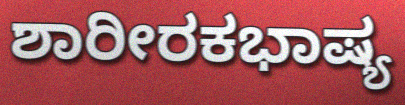
ಶಾರೀರಕಭಾಷ್ಯ